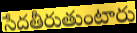
సేదతీరుతుంటారు